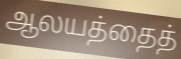
ஆலயத்தைத்